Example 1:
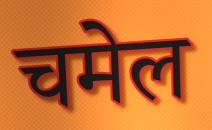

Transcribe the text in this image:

चमेल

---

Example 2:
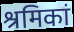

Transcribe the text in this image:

श्रमिकां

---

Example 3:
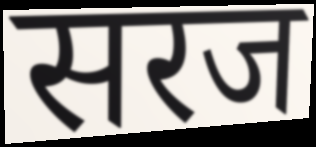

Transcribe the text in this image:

सरज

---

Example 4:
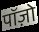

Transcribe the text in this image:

पॉज़ो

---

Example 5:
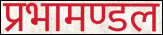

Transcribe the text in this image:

प्रभामण्डल